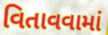
વિતાવવામાં